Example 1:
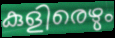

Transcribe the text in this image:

കുളിരെഴും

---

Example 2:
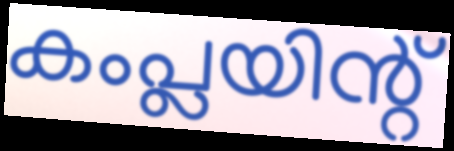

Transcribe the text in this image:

കംപ്ലയിന്റ്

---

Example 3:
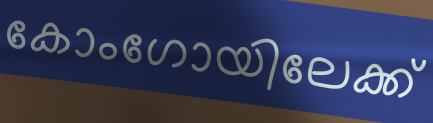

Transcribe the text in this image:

കോംഗോയിലേക്ക്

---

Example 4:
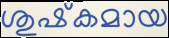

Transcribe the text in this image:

ശുഷ്‌കമായ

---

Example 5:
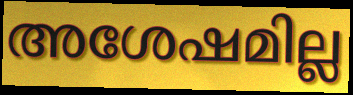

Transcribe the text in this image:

അശേഷമില്ല